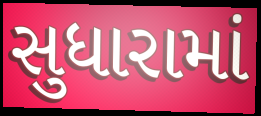
સુધારામાં